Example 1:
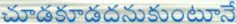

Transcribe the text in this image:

చూడకూడదనుకుంటూనే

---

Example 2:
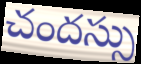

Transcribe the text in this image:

చందస్సు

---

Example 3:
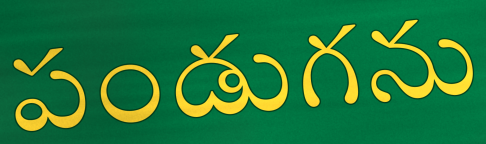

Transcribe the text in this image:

పండుగను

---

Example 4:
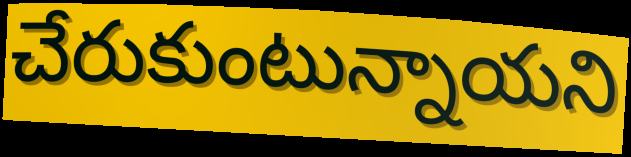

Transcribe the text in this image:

చేరుకుంటున్నాయని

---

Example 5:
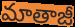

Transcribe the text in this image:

మాతాజీ